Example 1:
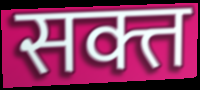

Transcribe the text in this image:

सक्त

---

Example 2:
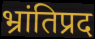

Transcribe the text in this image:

भ्रांतिप्रद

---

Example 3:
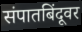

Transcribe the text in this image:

संपातबिंदूवर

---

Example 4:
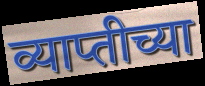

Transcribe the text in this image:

व्याप्तीच्या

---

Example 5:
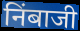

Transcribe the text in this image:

निंबाजी